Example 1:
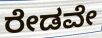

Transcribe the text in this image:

ರೇಡವೇ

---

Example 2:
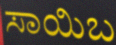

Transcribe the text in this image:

ಸಾಯಿಬ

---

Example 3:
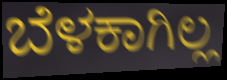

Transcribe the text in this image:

ಬೆಳಕಾಗಿಲ್ಲ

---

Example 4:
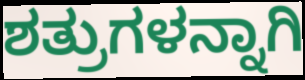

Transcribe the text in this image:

ಶತ್ರುಗಳನ್ನಾಗಿ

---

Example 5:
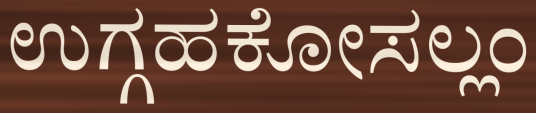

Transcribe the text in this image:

ಉಗ್ಗಹಕೋಸಲ್ಲಂ